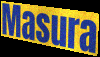
Masura